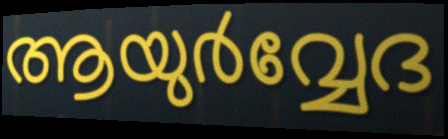
ആയുർവ്വേദ